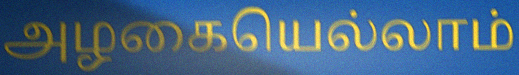
அழகையெல்லாம்